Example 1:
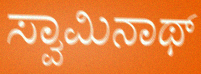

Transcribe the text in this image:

ಸ್ವಾಮಿನಾಥ್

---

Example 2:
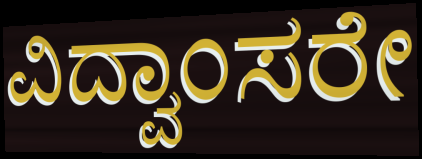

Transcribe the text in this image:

ವಿದ್ವಾಂಸರೇ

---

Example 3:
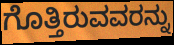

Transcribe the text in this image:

ಗೊತ್ತಿರುವವರನ್ನು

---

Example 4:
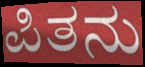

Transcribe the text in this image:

ಪಿತನು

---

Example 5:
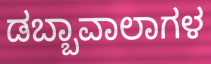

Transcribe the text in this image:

ಡಬ್ಬಾವಾಲಾಗಳ